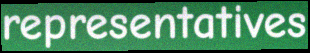
representatives